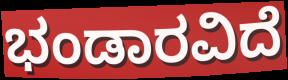
ಭಂಡಾರವಿದೆ